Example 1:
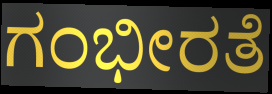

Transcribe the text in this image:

ಗಂಭೀರತೆ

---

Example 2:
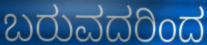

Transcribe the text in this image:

ಬರುವದರಿಂದ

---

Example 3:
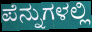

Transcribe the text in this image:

ಪೆನ್ನುಗಳಲ್ಲಿ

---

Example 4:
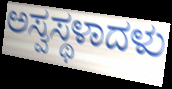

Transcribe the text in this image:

ಅಸ್ವಸ್ಥಳಾದಳು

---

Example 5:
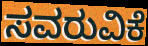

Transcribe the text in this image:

ಸವರುವಿಕೆ